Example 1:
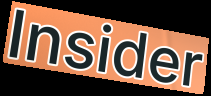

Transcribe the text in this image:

Insider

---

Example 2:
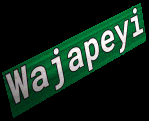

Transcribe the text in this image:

Wajapeyi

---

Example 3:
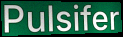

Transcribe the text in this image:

Pulsifer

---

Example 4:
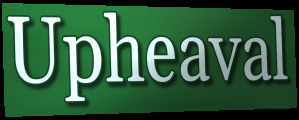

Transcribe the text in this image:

Upheaval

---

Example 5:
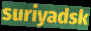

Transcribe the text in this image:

suriyadsk